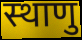
स्थाणु